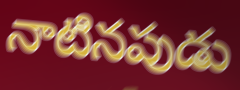
నాటినపుడు